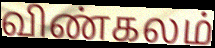
விண்கலம்